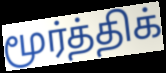
மூர்த்திக்